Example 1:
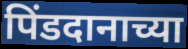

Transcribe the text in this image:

पिंडदानाच्या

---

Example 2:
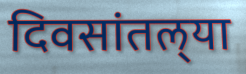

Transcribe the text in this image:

दिवसांतल्या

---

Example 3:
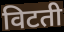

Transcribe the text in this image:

विटती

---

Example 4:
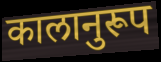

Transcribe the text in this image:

कालानुरूप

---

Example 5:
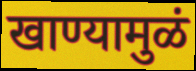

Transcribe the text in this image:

खाण्यामुळं